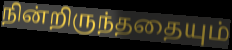
நின்றிருந்ததையும்